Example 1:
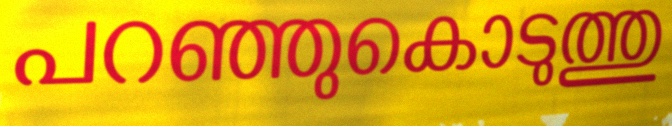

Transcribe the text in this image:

പറഞ്ഞുകൊടുത്തു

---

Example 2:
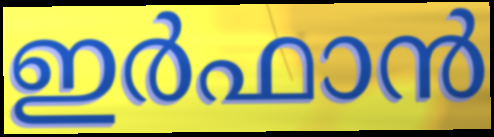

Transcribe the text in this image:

ഇർഫാൻ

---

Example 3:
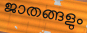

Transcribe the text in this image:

ജാതങ്ങളും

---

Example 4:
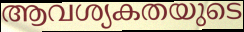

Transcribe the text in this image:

ആവശ്യകതയുടെ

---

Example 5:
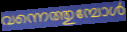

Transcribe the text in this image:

വന്നെത്തുമ്പോൾ